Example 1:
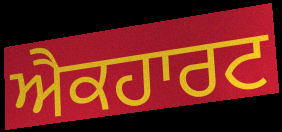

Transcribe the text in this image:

ਐਕਹਾਰਟ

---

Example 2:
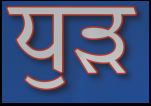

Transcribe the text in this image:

ਧੁੜ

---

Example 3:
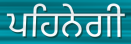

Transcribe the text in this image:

ਪਹਿਨੇਗੀ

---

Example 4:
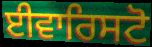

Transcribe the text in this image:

ਈਵਾਰਿਸਟੋ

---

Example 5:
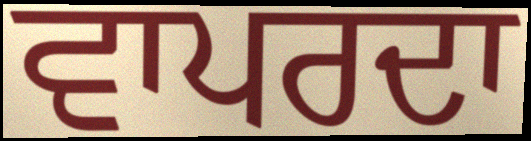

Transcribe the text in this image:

ਵਾਪਰਦਾ